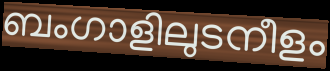
ബംഗാളിലുടനീളം